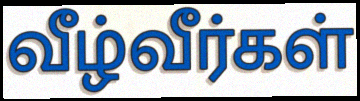
வீழ்வீர்கள்